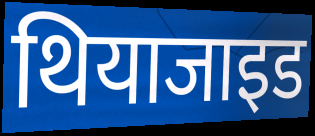
थियाजाइड